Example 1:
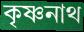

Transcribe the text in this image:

কৃষ্ণনাথ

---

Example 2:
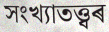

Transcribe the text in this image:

সংখ্যাতত্ত্বৰ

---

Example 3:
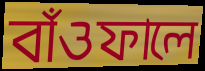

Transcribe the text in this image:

বাঁওফালে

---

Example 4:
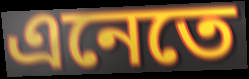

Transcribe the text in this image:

এনেতে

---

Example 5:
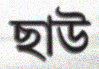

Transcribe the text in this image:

ছাউ